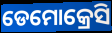
ଡେମୋକ୍ରେସି